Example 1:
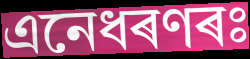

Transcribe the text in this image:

এনেধৰণৰঃ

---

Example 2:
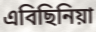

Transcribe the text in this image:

এবিছিনিয়া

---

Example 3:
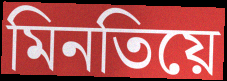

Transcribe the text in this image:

মিনতিয়ে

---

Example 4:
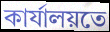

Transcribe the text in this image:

কাৰ্যালয়তে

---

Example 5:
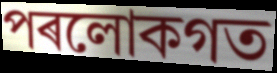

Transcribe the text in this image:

পৰলোকগত